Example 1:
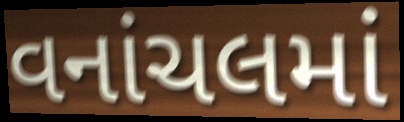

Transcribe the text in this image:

વનાંચલમાં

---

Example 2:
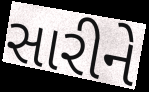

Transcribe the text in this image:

સારીને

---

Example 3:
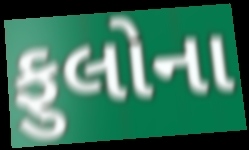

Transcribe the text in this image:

ફુલોના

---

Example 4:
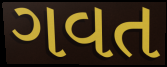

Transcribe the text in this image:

ગવત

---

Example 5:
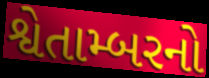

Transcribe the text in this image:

શ્વેતામ્બરનો